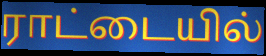
ராட்டையில்